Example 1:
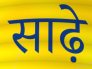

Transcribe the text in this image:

साढ़े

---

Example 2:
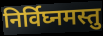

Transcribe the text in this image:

निर्विघ्नमस्तु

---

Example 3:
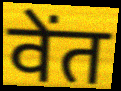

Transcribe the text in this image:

वेंत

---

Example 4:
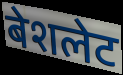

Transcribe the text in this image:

बेशलेट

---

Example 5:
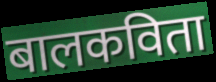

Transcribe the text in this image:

बालकविता